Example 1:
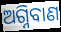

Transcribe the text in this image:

ଅଗ୍ନିବାଣ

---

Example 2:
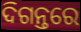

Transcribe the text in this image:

ଦିଗନ୍ତରେ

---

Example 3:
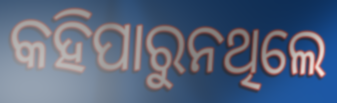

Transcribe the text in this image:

କହିପାରୁନଥିଲେ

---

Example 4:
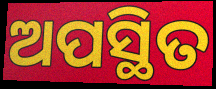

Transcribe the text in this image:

ଅପସ୍ଥିତ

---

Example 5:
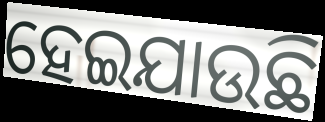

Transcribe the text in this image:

ହେଇଯାଉଛି